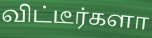
விட்டீர்களா